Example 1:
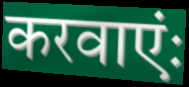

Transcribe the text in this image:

करवाएंः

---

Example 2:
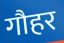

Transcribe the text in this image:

गौहर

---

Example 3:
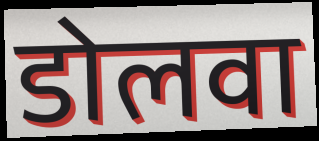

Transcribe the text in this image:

डोलवा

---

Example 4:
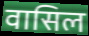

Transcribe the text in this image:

वासिल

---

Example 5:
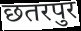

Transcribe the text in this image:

छतरपुर